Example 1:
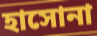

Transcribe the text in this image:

হাসোনা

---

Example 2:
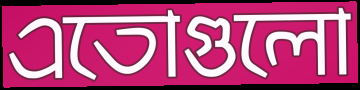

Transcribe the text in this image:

এতোগুলো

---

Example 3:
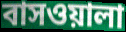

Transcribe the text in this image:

বাসওয়ালা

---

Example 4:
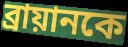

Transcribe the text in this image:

ব্রায়ানকে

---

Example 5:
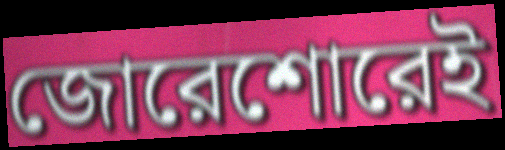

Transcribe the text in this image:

জোরেশোরেই